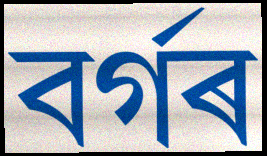
বৰ্গৰ